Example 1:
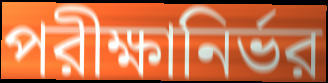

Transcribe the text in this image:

পরীক্ষানির্ভর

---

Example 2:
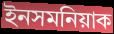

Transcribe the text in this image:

ইনসমনিয়াক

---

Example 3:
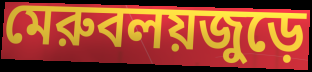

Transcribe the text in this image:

মেরুবলয়জুড়ে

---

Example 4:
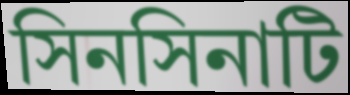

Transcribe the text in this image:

সিনসিনাটি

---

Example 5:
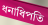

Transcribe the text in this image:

ধনাধিপতি